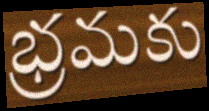
భ్రమకు